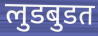
लुडबुडत